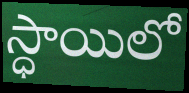
స్ధాయిలో